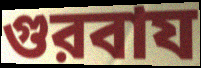
গুরবায